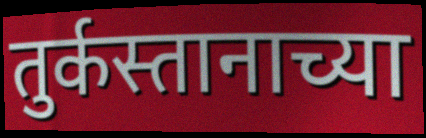
तुर्कस्तानाच्या